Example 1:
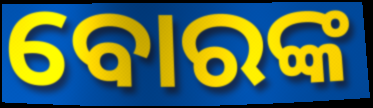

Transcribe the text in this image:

ବୋରଙ୍କ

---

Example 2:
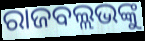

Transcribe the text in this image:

ରାଜବଲ୍ଲଭଙ୍କୁ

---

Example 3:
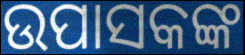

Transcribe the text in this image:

ଉପାସକଙ୍କ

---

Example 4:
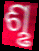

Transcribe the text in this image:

ଶୢ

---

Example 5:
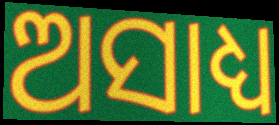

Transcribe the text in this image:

ଅସାଧ୍ୟ